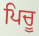
ਪਿਚੂ